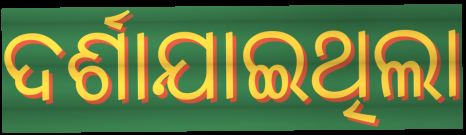
ଦର୍ଶାଯାଇଥିଲା